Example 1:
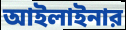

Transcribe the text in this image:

আইলাইনার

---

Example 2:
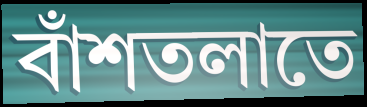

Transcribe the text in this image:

বাঁশতলাতে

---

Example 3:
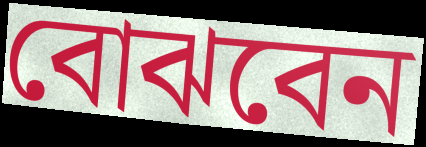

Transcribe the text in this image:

বোঝবেন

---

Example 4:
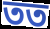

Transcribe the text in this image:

তত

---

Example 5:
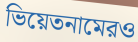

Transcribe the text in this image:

ভিয়েতনামেরও